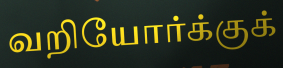
வறியோர்க்குக்